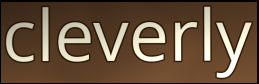
cleverly